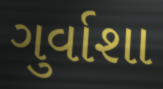
ગુર્વાશા